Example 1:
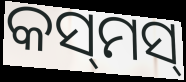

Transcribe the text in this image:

କସ୍‌ମସ୍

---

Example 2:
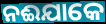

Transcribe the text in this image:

ନଈଯାକେ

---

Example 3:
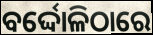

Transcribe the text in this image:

ବର୍ଦ୍ଦୋଳିଠାରେ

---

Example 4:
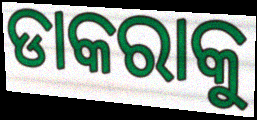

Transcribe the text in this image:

ଡାକରାକୁ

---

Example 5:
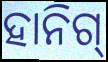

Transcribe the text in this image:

ହାନିଗ୍